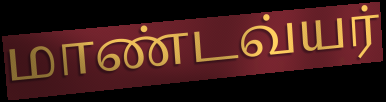
மாண்டவ்யர்